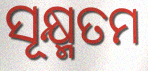
ସୂକ୍ଷ୍ମତମ